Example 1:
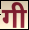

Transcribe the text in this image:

गी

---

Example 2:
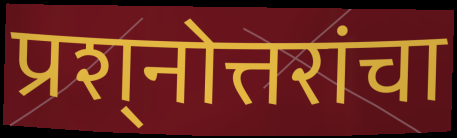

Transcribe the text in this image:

प्रश्नोत्तरांचा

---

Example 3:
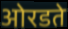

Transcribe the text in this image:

ओरडते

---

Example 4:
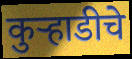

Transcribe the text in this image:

कुऱ्हाडीचे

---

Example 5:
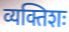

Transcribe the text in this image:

व्यक्तिशः